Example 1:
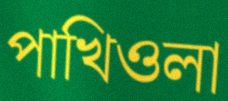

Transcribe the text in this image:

পাখিওলা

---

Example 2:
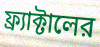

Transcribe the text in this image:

ফ্র্যাক্টালের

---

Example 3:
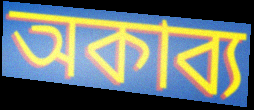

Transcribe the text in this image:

অকাব্য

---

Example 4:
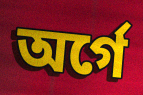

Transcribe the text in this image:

অর্গে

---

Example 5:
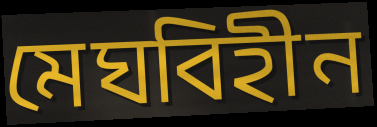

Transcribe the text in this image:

মেঘবিহীন